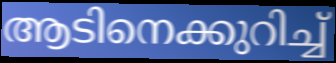
ആടിനെക്കുറിച്ച്